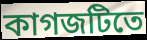
কাগজটিতে